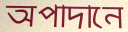
অপাদানে